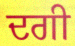
ਦਗੀ